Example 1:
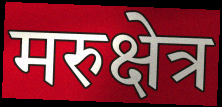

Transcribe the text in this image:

मरुक्षेत्र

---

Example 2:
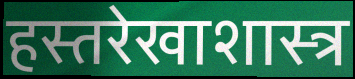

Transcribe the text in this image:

हस्तरेखाशास्त्र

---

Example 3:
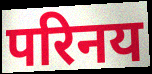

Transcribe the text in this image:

परिनय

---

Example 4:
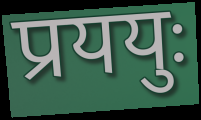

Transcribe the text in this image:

प्रययुः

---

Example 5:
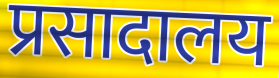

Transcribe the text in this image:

प्रसादालय